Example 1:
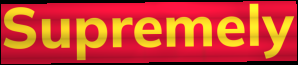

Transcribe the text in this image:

Supremely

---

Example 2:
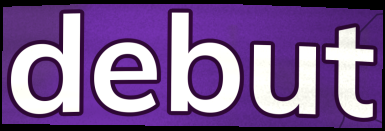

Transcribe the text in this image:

debut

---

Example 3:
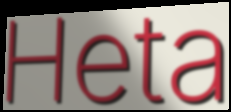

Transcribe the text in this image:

Heta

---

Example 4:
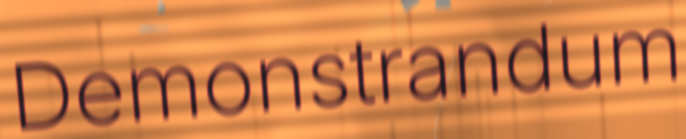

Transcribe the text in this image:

Demonstrandum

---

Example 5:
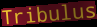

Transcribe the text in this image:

Tribulus